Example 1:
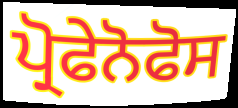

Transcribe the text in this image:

ਪ੍ਰੋਫੇਨੋਫੋਸ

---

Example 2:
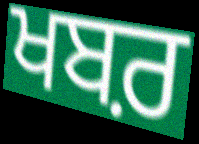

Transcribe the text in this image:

ਖਬ਼ਰ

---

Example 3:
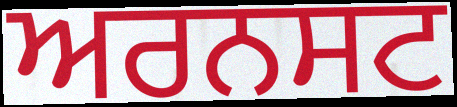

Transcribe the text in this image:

ਅਰਨਸਟ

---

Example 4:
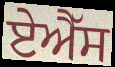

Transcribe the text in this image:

ਏਐੱਸ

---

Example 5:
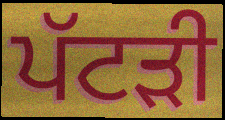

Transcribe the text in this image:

ਪੱਟੜੀ